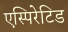
एस्पिरेटिड